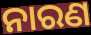
ନାରଣ